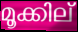
മൂക്കില്